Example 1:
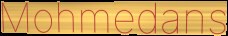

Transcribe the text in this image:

Mohmedans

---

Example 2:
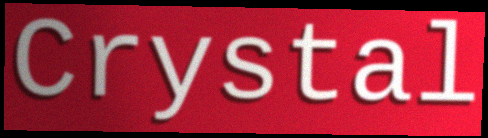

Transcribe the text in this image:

Crystal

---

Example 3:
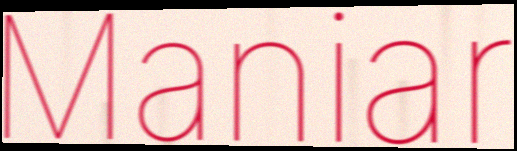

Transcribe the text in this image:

Maniar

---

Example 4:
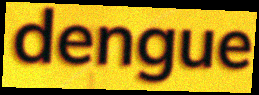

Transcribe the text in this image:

dengue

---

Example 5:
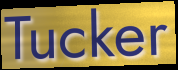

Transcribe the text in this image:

Tucker